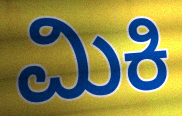
ಮಿಕಿ